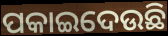
ପକାଇଦେଉଛି